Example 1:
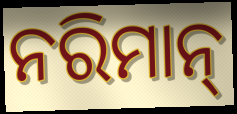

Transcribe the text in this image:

ନରିମାନ୍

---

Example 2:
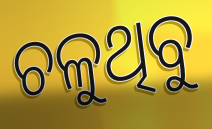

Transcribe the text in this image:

ଚଳୁଥିବୁ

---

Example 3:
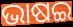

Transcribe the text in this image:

ଭାଷଇ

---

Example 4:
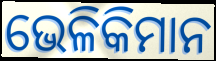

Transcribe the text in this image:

ଭେଳିକିମାନ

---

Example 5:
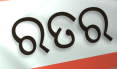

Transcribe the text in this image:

ରତର